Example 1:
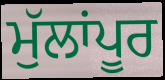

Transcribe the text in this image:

ਮੁੱਲਾਂਪੂਰ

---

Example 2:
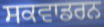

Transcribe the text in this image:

ਸਕਵਾਡਰਨ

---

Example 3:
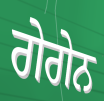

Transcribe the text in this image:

ਗੇਗੇਨ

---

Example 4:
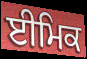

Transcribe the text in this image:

ਈਮਿਕ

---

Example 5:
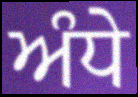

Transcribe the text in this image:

ਅੰਧੇ